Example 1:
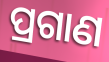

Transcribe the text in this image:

ପ୍ରଗାଣ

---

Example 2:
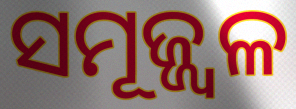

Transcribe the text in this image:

ସମୂଜ୍ଜ୍ୱଳ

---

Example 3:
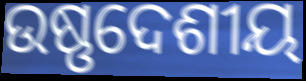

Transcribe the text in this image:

ଉଷ୍ଣଦେଶୀୟ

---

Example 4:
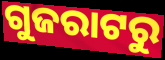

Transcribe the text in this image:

ଗୁଜରାଟରୁ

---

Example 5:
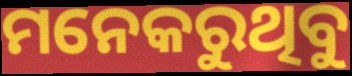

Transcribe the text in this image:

ମନେକରୁଥିବୁ